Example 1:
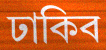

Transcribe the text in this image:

ঢাকিব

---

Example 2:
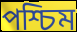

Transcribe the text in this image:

পশ্চিম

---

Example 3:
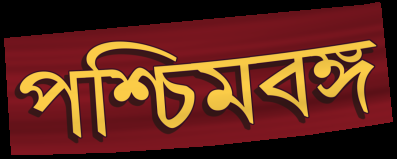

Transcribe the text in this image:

পশ্চিমবঙ্গ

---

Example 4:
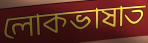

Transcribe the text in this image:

লোকভাষাত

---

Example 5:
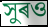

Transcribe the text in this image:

সুৰও